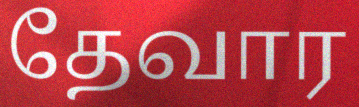
தேவார